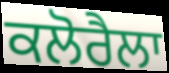
ਕਲੋਰੈਲਾ